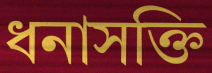
ধনাসক্তি